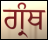
ਗ੍ਰੰਥ